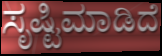
ಸೃಷ್ಟಿಮಾಡಿದೆ